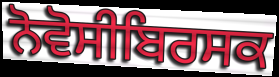
ਨੋਵੋਸੀਬਿਰਸਕ